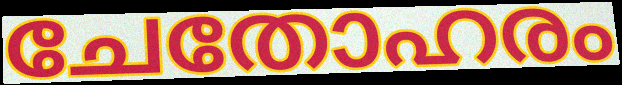
ചേതോഹരം